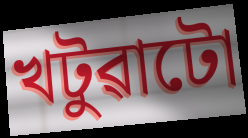
খটুৱাটো